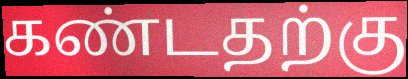
கண்டதற்கு